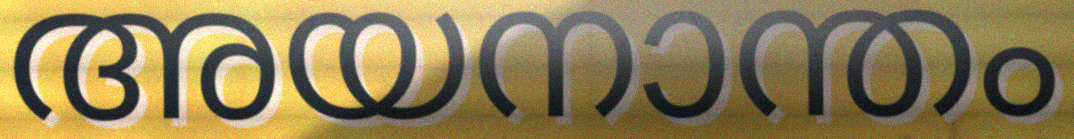
അയനാന്തം